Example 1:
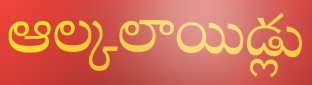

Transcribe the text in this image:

ఆల్కలాయిడ్లు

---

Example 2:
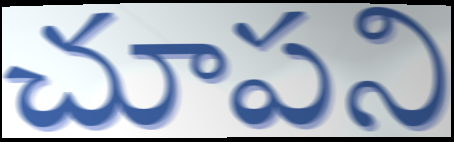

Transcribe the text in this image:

చూపని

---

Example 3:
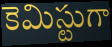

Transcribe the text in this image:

కెమిస్టుగా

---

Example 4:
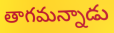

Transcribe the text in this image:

తాగమన్నాడు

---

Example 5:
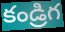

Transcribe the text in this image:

కండ్రిగ